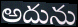
అదును